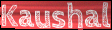
Kaushal